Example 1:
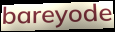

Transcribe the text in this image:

bareyode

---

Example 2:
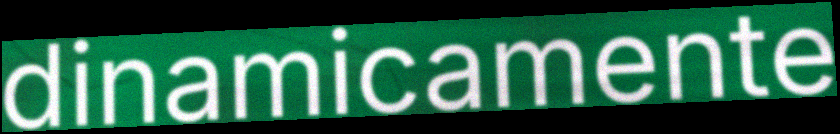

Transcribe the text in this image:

dinamicamente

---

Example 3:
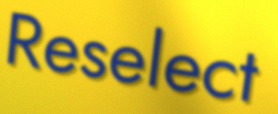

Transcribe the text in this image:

Reselect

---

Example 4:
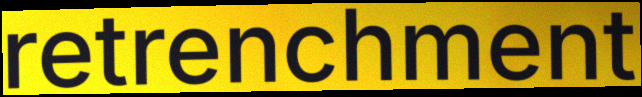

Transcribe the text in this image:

retrenchment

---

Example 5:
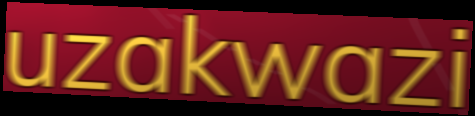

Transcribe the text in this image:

uzakwazi